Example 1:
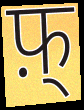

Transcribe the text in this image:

फ़्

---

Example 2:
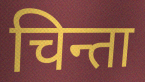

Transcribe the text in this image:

चिन्ता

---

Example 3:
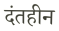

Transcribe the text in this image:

दंतहीन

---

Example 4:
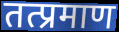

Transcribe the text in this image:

तत्प्रमाण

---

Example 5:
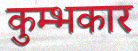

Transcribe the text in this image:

कुम्भकार